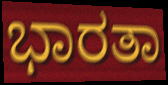
ಭಾರತಾ